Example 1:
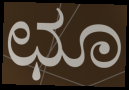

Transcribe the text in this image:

ಛೂ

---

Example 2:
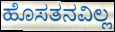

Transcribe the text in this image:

ಹೊಸತನವಿಲ್ಲ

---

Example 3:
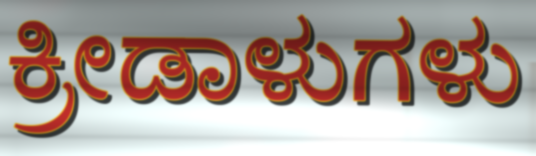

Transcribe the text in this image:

ಕ್ರೀಡಾಳುಗಳು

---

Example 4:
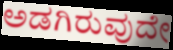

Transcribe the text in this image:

ಅಡಗಿರುವುದೇ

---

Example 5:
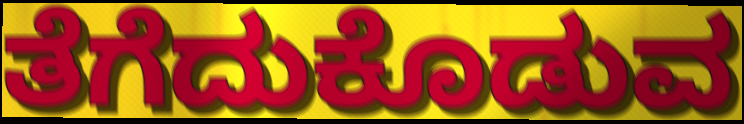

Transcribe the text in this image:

ತೆಗೆದುಕೊಡುವ